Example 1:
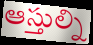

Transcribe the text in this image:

ఆస్తుల్ని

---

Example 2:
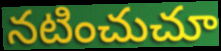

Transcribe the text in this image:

నటించుచూ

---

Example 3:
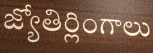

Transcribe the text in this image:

జ్యోతిర్లింగాలు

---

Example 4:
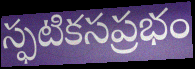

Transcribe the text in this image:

స్ఫటికసప్రభం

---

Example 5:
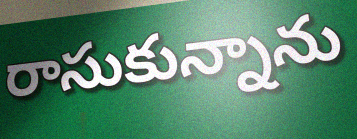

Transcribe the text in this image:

రాసుకున్నాను